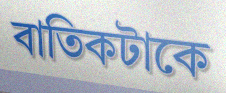
বাতিকটাকে